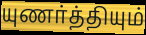
யுணர்த்தியும்